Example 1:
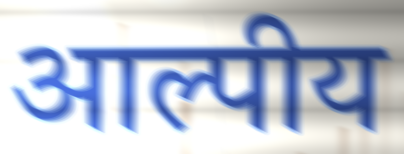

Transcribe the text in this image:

आल्पीय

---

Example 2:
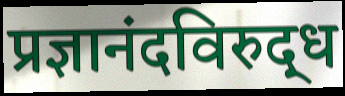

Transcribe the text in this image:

प्रज्ञानंदविरुद्ध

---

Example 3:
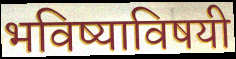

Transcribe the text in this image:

भविष्याविषयी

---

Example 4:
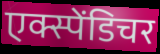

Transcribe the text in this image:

एक्स्पेंडिचर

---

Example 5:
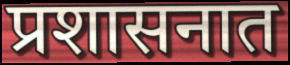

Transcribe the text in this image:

प्रशासनात